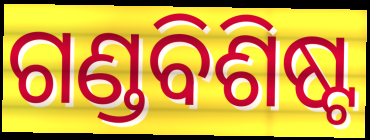
ଗଣ୍ଡବିଶିଷ୍ଟ